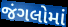
જંગલોમાં